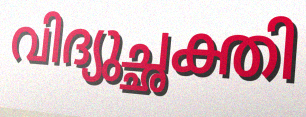
വിദ്യുച്ഛക്തി